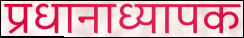
प्रधानाध्यापक